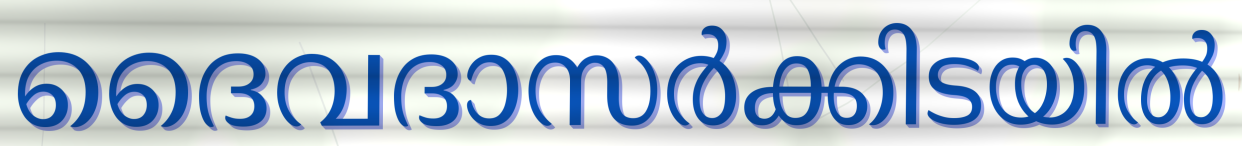
ദൈവദാസർക്കിടയിൽ